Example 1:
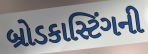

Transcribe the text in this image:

બ્રોડકાસ્ટિંગની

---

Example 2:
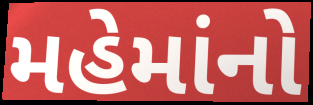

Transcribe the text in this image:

મહેમાંનો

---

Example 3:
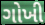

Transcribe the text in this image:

ગોખી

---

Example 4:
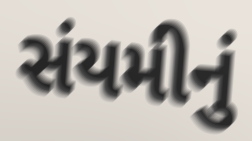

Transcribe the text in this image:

સંયમીનું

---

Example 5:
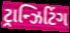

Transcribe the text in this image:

ટ્રાન્ઝિટિંગ